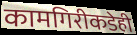
कामगिरीकडेही